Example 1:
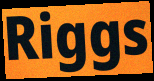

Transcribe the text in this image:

Riggs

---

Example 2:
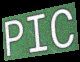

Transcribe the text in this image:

PIC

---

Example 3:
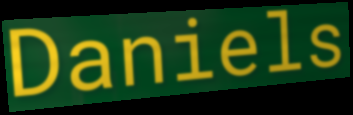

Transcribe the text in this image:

Daniels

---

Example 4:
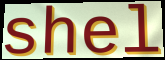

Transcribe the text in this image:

shel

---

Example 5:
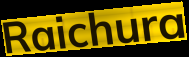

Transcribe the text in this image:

Raichura